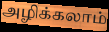
அழிக்கலாம்